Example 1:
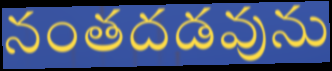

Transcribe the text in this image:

నంతదడవును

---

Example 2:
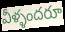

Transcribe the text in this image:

వీళ్ళందరూ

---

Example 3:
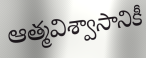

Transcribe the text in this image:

ఆత్మవిశ్వాసానికీ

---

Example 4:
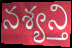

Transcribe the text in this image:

నశ్యన్తి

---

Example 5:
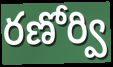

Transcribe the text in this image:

రణోర్వి